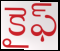
కైఫ్